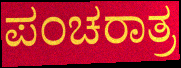
ಪಂಚರಾತ್ರ